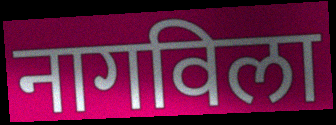
नागविला